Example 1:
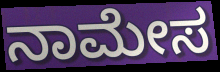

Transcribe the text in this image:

ನಾಮೇಸ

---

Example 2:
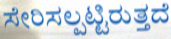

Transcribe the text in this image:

ಸೇರಿಸಲ್ಪಟ್ಟಿರುತ್ತದೆ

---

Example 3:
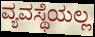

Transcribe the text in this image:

ವ್ಯವಸ್ಥೆಯಲ್ಲ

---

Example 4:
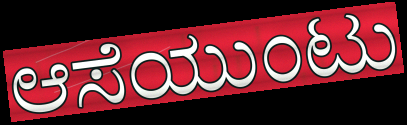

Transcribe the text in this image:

ಆಸೆಯುಂಟು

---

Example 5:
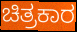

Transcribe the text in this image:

ಚಿತ್ರಕಾರ